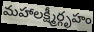
మహాలక్ష్మీర్గృహం